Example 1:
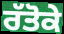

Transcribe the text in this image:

ਰੱਤੋਕੇ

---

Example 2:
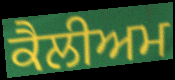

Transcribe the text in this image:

ਕੈਲੀਅਮ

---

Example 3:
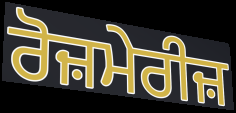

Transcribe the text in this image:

ਰੋਜ਼ਮੇਰੀਜ਼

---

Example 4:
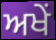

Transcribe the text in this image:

ਅਖੇਂ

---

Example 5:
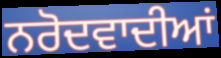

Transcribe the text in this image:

ਨਰੋਦਵਾਦੀਆਂ